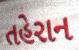
તહેરાન